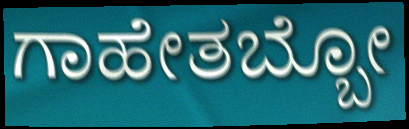
ಗಾಹೇತಬ್ಬೋ